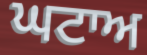
ਘਟਾਅ